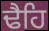
ਢੈਹਿ